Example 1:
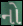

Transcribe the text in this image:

નો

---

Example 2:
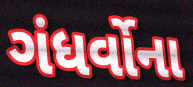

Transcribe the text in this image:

ગંધર્વોના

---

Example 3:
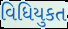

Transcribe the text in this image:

વિધિયુકત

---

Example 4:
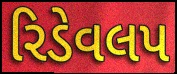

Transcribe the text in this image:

રિડેવલપ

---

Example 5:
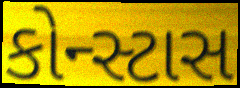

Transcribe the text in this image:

કોન્સ્ટાસ